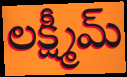
లక్ష్మీమ్